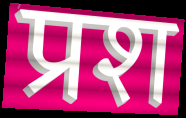
प्रश